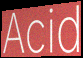
Acid